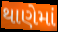
થાણેમાં